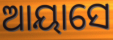
ଆୟାସେ